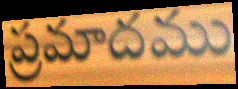
ప్రమాదము